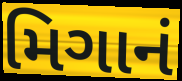
મિગાનં